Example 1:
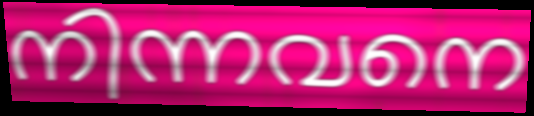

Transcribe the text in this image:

നിന്നവനെ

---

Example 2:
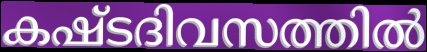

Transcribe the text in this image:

കഷ്ടദിവസത്തിൽ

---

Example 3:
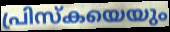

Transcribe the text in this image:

പ്രിസ്കയെയും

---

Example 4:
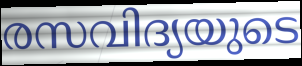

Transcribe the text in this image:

രസവിദ്യയുടെ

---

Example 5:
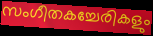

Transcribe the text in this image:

സംഗീതകച്ചേരികളും